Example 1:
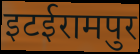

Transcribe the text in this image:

इटईरामपुर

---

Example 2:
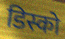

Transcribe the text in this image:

डिस्को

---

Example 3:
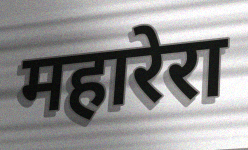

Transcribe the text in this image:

महारेरा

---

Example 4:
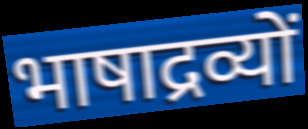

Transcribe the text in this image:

भाषाद्रव्यों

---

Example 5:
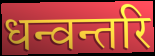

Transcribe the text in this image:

धन्वन्तरि